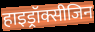
हाइड्रॉक्सीजिन